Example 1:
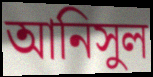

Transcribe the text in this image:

আনিসুল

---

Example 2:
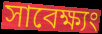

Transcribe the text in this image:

সাবেক্ষ্যং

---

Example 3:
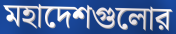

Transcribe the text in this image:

মহাদেশগুলোর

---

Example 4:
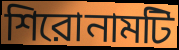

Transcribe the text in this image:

শিরোনামটি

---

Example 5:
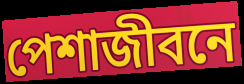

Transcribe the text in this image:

পেশাজীবনে